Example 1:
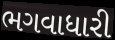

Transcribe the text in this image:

ભગવાધારી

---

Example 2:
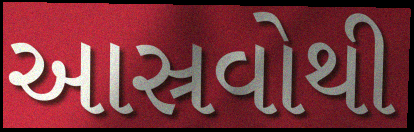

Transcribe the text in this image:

આસ્રવોથી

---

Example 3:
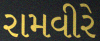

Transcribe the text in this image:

રામવીરે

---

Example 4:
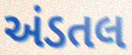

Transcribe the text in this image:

અંડતલ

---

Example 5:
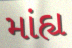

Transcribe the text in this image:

માંહ્ય